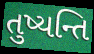
તુષ્યન્તિ